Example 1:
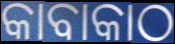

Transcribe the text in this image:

କାବାକାଠ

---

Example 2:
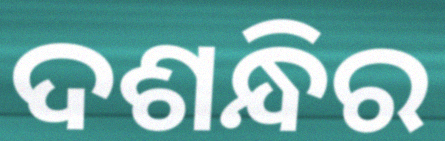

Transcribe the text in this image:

ଦଶନ୍ଧିର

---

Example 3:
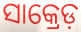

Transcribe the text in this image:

ସାକ୍ରେଡ଼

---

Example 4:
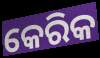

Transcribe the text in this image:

କେରିକ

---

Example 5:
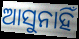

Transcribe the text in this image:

ଆସୁନାହିଁ